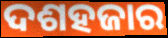
ଦଶହଜାର